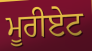
ਮੂਰੀਏਟ